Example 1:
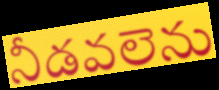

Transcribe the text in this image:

నీడవలెను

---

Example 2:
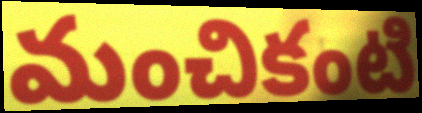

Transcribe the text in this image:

మంచికంటి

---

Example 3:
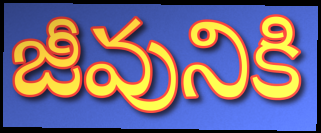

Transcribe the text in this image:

జీవునికి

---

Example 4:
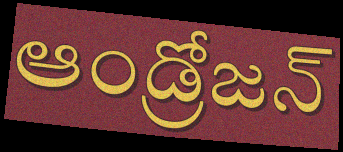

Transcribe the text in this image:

ఆండ్రోజన్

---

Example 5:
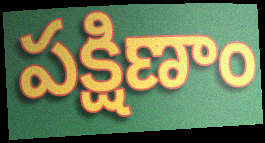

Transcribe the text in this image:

పక్షిణాం